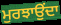
ਮੁਰਝਾਉਂਦਾ